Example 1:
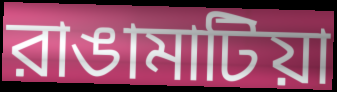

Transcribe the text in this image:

রাঙামাটিয়া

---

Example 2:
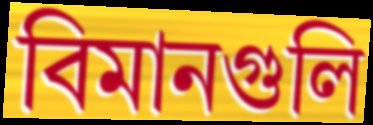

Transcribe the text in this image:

বিমানগুলি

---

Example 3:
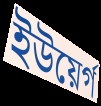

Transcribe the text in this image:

ইউয়ের্গ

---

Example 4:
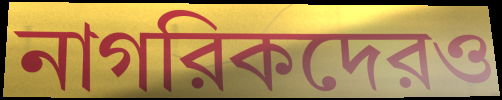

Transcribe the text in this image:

নাগরিকদেরও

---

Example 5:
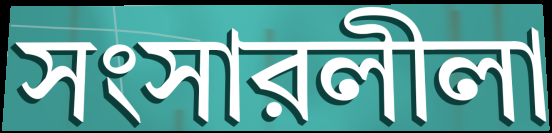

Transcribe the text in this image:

সংসারলীলা